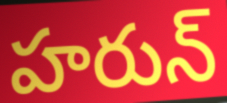
హరున్